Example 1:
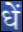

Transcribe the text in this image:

धें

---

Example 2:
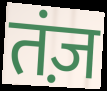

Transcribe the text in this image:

तंज़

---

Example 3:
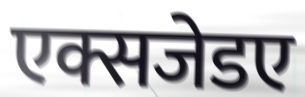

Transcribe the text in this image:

एक्सजेडए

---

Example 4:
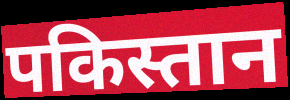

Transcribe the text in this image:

पकिस्तान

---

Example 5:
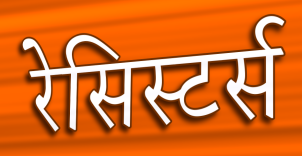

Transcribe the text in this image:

रेसिस्टर्स